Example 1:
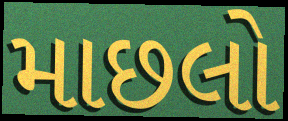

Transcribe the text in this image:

માછલો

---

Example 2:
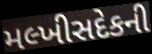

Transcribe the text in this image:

મલ્ખીસદેકની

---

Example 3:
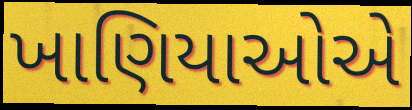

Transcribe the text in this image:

ખાણિયાઓએ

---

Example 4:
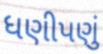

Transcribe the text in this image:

ધણીપણું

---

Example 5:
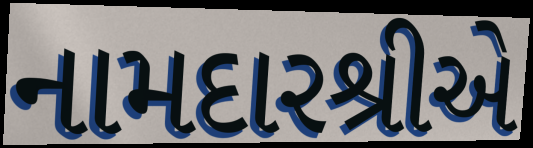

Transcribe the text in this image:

નામદારશ્રીએ